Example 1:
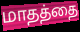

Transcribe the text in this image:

மாதத்தை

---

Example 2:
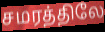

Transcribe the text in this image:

சமரத்திலே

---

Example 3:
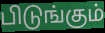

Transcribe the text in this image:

பிடுங்கும்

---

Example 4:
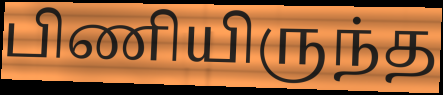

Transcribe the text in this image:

பிணியிருந்த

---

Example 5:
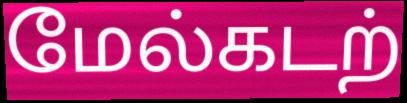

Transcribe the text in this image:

மேல்கடற்